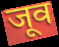
जूव